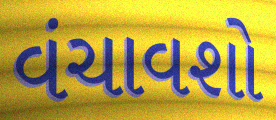
વંચાવશો